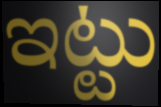
ఇట్టు